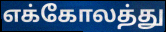
எக்கோலத்து